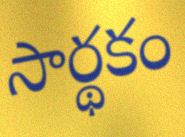
సార్థకం